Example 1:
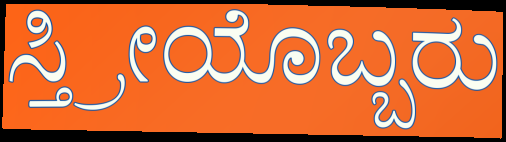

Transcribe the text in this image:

ಸ್ತ್ರೀಯೊಬ್ಬರು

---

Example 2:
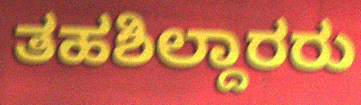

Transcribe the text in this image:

ತಹಶಿಲ್ದಾರರು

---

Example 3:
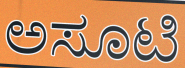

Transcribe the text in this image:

ಅಸೂಟಿ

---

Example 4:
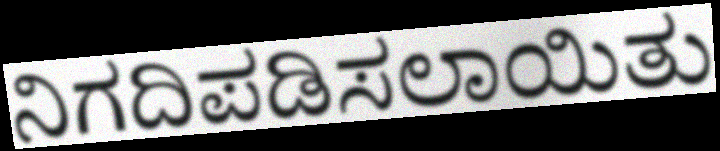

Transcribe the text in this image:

ನಿಗದಿಪಡಿಸಲಾಯಿತು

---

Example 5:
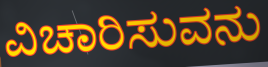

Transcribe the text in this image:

ವಿಚಾರಿಸುವನು